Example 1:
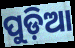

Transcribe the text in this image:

ପୁଡ଼ିଆ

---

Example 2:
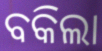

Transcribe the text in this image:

ବକିଲା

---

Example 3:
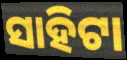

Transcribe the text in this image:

ସାହିଟା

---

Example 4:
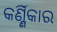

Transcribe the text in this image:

କର୍ଣ୍ଣିକାର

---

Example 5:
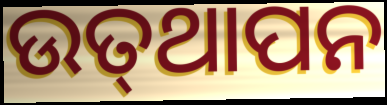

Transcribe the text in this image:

ଉତ୍‌ଥାପନ